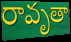
రావృతా